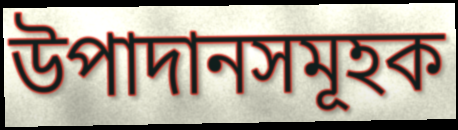
উপাদানসমূহক